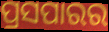
ପ୍ରସପାରର